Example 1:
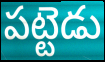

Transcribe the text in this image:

పట్టెడు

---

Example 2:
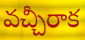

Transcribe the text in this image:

వచ్చీరాక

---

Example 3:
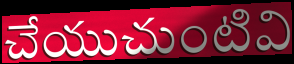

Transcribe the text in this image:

చేయుచుంటివి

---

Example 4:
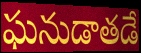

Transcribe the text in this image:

ఘనుడాతడే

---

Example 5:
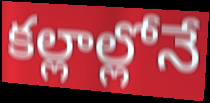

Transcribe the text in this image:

కల్లాల్లోనే